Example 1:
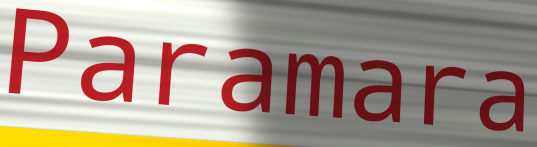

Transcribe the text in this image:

Paramara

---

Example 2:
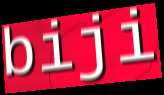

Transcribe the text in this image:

biji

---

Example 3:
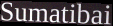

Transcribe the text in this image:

Sumatibai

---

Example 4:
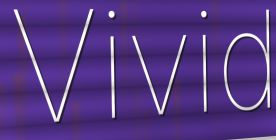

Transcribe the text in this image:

Vivid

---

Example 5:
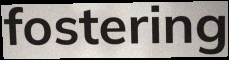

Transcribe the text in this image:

fostering